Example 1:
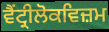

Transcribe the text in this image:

ਵੈਂਟ੍ਰੀਲੋਕਵਿਜ਼ਮ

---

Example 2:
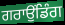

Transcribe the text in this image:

ਗਰਾਉਂਡਿੰਗ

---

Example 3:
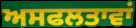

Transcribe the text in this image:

ਅਸਫਲਤਾਵਾਂ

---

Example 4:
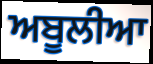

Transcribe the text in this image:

ਅਬੂਲੀਆ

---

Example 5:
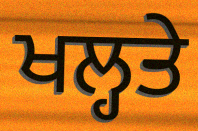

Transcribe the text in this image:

ਖਲ੍ਹਤੇ